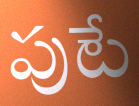
పుటే